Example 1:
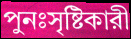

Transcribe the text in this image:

পুনঃসৃষ্টিকারী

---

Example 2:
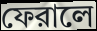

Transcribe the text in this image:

ফেরালে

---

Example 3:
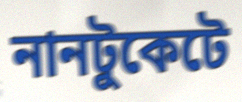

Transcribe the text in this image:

নানটুকেটে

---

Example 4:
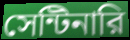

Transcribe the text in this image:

সেন্টিনারি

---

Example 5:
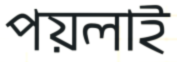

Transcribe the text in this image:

পয়লাই